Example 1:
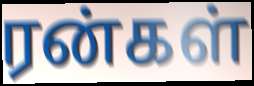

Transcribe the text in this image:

ரன்கள்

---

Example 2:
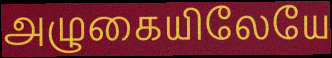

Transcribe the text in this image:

அழுகையிலேயே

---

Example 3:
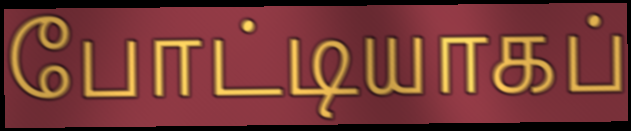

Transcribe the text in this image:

போட்டியாகப்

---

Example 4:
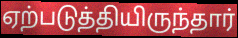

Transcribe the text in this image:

ஏற்படுத்தியிருந்தார்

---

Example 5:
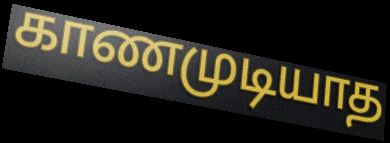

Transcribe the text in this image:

காணமுடியாத